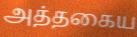
அத்தகைய